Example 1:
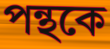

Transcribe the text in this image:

পন্থকে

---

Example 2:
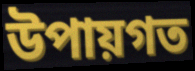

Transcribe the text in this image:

উপায়গত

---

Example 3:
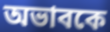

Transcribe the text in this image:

অভাবকে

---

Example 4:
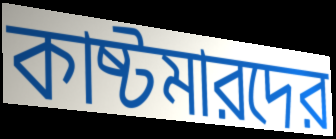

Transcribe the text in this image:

কাষ্টমারদের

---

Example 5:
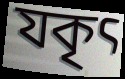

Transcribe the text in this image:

যকৃৎ